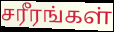
சரீரங்கள்